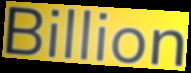
Billion